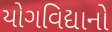
યોગવિદ્યાનો